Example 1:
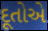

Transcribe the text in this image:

દૂતોએ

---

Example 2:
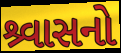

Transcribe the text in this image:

શ્ર્વાસનો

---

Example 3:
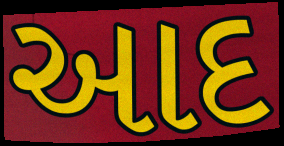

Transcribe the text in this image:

આદ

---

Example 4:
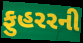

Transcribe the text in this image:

ફુહરરની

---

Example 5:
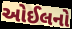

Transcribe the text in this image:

ઓઈલનો